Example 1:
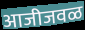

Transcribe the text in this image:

आजीजवळ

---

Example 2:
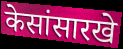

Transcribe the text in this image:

केसांसारखे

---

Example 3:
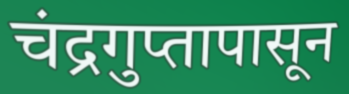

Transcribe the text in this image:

चंद्रगुप्तापासून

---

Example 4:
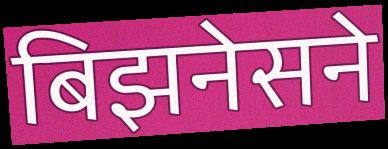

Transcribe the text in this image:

बिझनेसने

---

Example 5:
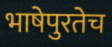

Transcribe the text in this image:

भाषेपुरतेच